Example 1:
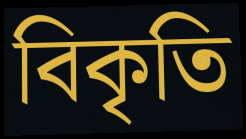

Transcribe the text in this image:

বিকৃতি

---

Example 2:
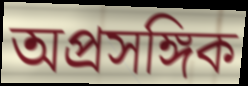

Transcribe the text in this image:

অপ্রসঙ্গিক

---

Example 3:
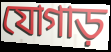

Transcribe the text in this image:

যোগাড়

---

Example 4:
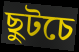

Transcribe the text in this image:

ছুটচে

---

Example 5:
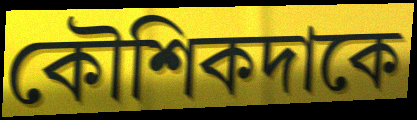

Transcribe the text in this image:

কৌশিকদাকে